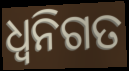
ଧ୍ଵନିଗତ